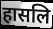
हासलि